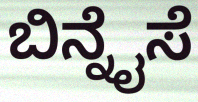
ಬಿನ್ನೈಸೆ